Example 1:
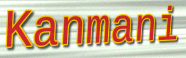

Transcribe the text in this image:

Kanmani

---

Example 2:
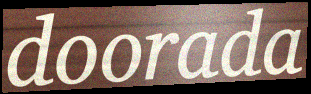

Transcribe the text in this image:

doorada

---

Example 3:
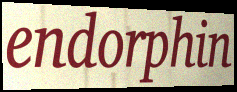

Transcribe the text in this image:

endorphin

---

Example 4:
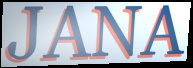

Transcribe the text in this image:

JANA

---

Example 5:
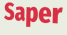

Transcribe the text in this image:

Saper